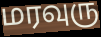
மரவுரு